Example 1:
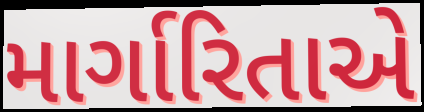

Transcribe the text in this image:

માર્ગારિતાએ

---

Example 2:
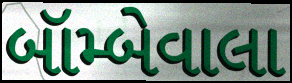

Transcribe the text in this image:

બૉમ્બેવાલા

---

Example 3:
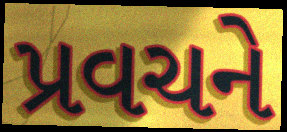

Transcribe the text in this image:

પ્રવચને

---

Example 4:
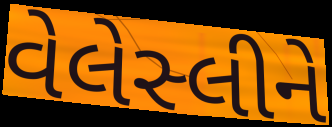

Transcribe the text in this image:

વેલેસ્લીને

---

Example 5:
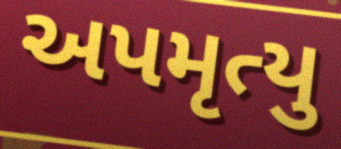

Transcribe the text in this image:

અપમૃત્યુ